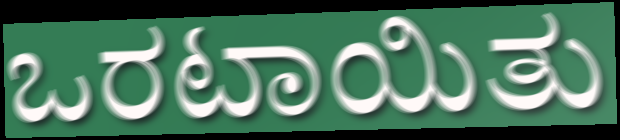
ಒರಟಾಯಿತು